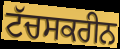
ਟੱਚਸਕਰੀਨ